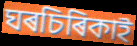
ঘৰচিৰিকাই